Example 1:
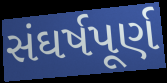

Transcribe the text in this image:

સંઘર્ષપૂર્ણ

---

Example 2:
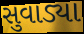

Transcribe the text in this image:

સુવાડ્યા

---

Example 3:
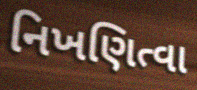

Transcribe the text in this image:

નિખણિત્વા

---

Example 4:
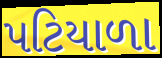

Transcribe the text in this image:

પટિયાળા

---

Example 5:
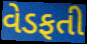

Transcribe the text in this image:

વેડફતી